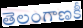
తెలంగాణకీ